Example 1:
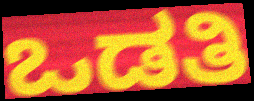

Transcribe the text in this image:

ಒಡತಿ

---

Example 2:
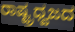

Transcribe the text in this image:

ರಾಷ್ಟ್ರಧ್ವಜದ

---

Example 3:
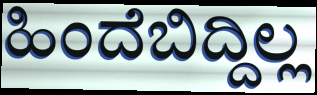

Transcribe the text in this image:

ಹಿಂದೆಬಿದ್ದಿಲ್ಲ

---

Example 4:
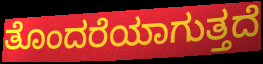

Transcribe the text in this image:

ತೊಂದರೆಯಾಗುತ್ತದೆ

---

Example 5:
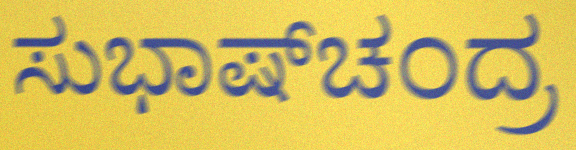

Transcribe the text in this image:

ಸುಭಾಷ್‌ಚಂದ್ರ